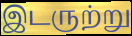
இடருற்று